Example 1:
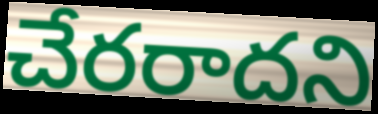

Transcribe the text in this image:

చేరరాదని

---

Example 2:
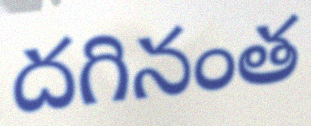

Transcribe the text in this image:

దగినంత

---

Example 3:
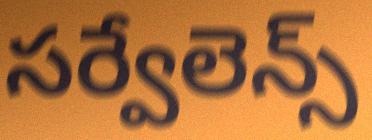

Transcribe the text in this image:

సర్వేలెన్స్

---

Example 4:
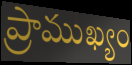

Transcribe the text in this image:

ప్రాముఖ్యం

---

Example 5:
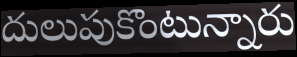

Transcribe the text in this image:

దులుపుకొంటున్నారు